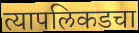
त्यापलिकडचा